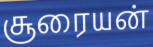
சூரையன்